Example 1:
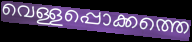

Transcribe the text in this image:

വെള്ളപ്പൊക്കത്തെ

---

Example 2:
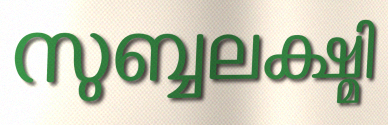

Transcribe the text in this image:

സുബ്ബലക്ഷ്മി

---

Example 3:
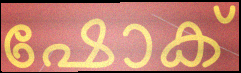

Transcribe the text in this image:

ഷോക്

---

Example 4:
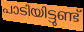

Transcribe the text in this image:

പാടിയിട്ടുണ്ട്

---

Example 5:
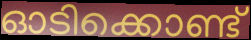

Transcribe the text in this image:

ഓടിക്കൊണ്ട്